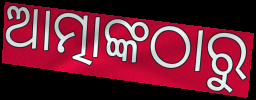
ଆତ୍ମାଙ୍କଠାରୁ